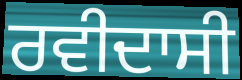
ਰਵੀਦਾਸੀ